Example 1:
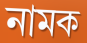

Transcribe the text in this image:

নামক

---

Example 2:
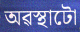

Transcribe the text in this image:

অৱস্থাটো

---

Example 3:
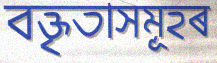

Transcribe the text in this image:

বক্তৃতাসমূহৰ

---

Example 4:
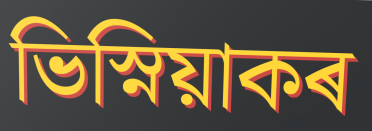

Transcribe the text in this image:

ভিস্নিয়াকৰ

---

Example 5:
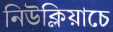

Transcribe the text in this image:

নিউক্লিয়াচে